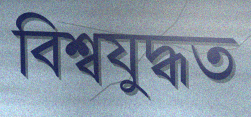
বিশ্বযুদ্ধত